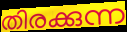
തിരക്കുന്ന